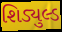
શિડ્યુલ્ડ